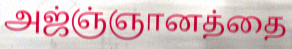
அஜ்ஞ்ஞானத்தை